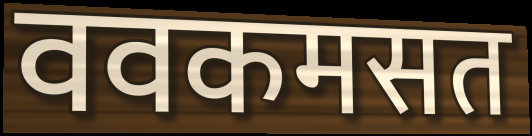
ववकमसत